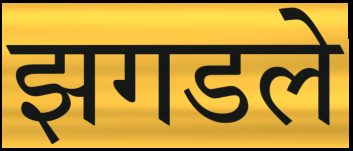
झगडले